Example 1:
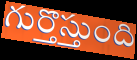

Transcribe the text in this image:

గుర్తొస్తుంది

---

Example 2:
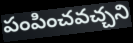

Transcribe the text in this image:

పంపించవచ్చని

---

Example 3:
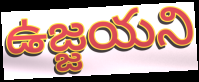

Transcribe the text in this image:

ఉజ్జయని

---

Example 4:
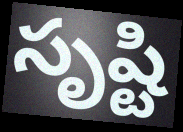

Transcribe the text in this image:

సృష్టి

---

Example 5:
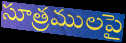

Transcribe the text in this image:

సూత్రములపై